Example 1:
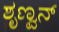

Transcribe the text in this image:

ಶೃಣ್ವನ್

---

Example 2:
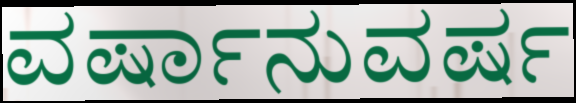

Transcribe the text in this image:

ವರ್ಷಾನುವರ್ಷ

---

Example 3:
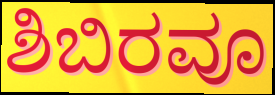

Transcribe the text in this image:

ಶಿಬಿರವೂ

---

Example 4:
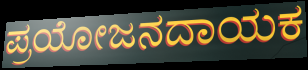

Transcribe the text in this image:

ಪ್ರಯೋಜನದಾಯಕ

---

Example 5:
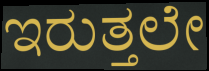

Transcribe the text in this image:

ಇರುತ್ತಲೇ